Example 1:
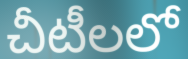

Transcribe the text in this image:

చీటీలలో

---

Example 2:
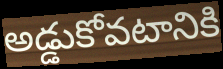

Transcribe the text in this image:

అడ్డుకోవటానికి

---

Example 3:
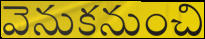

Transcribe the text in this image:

వెనుకనుంచి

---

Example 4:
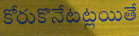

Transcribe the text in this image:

కోరుకొనేటట్లయితే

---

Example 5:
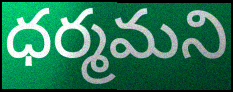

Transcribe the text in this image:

ధర్మమని